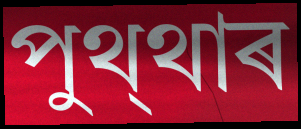
পুথ্থাৰ